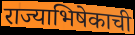
राज्याभिषेकाची